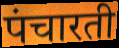
पंचारती